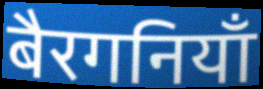
बैरगनियाँ